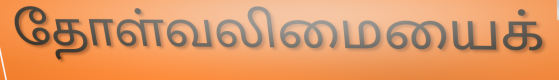
தோள்வலிமையைக்